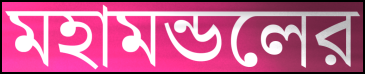
মহামন্ডলের